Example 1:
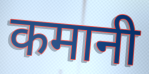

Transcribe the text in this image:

कमानी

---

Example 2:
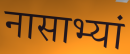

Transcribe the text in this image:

नासाभ्यां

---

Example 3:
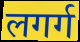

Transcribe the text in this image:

लगर्ग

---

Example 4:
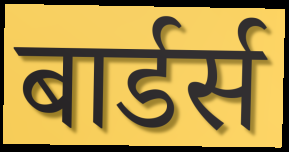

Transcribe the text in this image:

बार्डर्स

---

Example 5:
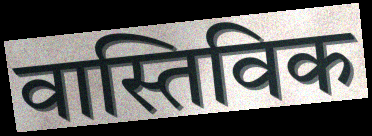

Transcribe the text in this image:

वास्तिविक